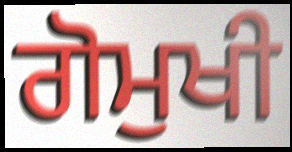
ਗੋਮੁਖੀ